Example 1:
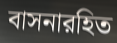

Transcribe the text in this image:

বাসনারহিত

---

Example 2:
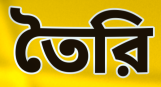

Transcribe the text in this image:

তৈরি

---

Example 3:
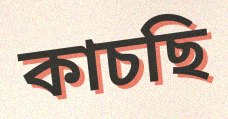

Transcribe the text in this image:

কাচছি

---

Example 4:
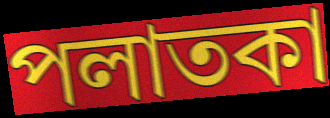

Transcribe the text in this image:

পলাতকা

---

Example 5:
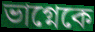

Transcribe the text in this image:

ভাগ্নেকে